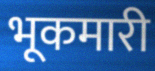
भूकमारी